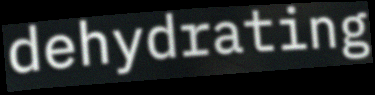
dehydrating